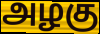
அழகு